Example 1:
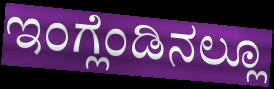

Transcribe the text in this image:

ಇಂಗ್ಲೆಂಡಿನಲ್ಲೂ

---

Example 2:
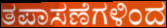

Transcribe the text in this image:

ತಪಾಸಣೆಗಳಿಂದ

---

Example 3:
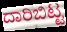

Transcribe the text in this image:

ದಾರಿಬಿಟ್ಟ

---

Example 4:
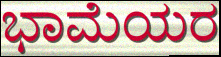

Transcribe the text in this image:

ಭಾಮೆಯರ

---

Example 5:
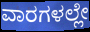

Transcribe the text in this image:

ವಾರಗಳಲ್ಲೇ